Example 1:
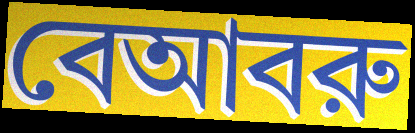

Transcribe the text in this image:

বেআবরু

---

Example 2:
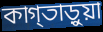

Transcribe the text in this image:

কাগ্‌তাড়ুয়া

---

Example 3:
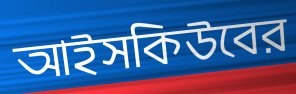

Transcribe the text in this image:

আইসকিউবের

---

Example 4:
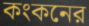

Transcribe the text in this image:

কংকনের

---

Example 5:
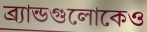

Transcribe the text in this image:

ব্র্যান্ডগুলোকেও